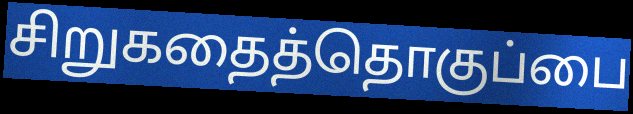
சிறுகதைத்தொகுப்பை